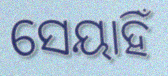
ସେୟାହିଁ